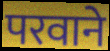
परवाने